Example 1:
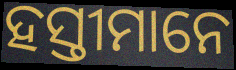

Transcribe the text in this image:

ହସ୍ତୀମାନେ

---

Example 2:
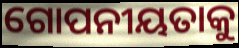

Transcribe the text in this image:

ଗୋପନୀୟତାକୁ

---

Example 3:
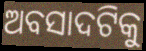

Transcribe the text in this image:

ଅବସାଦଟିକୁ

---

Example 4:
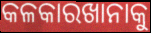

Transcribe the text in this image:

କଳକାରଖାନାକୁ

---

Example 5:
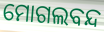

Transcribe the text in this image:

ମୋଗଲବନ୍ଦ